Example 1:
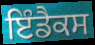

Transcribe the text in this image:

ਇੰਡੈਕਸ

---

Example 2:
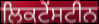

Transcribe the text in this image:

ਲਿਕਟੇਂਸਟੀਨ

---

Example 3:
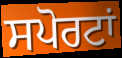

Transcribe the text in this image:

ਸਪੋਰਟਾਂ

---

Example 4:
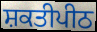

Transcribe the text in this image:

ਸ਼ਕਤੀਪੀਠ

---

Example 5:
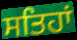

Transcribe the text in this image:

ਸਤਿਹਾਂ